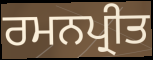
ਰਮਨਪ੍ਰੀਤ